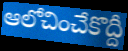
ఆలోచించేకొద్దీ